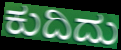
ಕುದಿದು